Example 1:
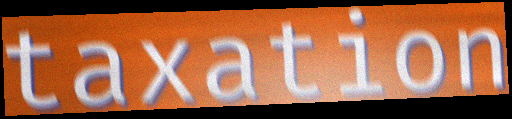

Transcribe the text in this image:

taxation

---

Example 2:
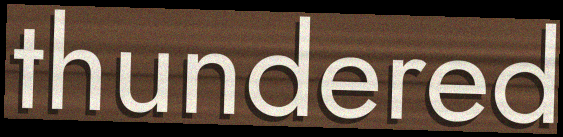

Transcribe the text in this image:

thundered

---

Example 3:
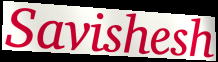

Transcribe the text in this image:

Savishesh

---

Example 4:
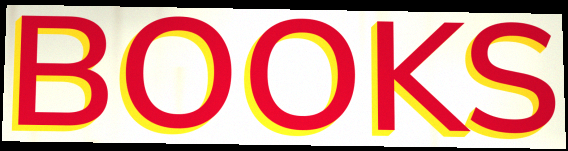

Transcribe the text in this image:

BOOKS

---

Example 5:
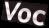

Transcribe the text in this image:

Voc